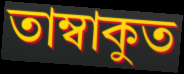
তাম্বাকুত